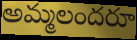
అమ్మలందరూ